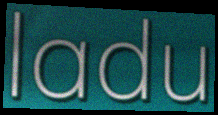
ladu